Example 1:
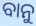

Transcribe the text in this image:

ବାନୁ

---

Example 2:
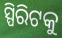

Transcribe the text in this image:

ସ୍ପିରିଟକୁ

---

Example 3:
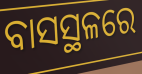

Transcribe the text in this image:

ବାସସ୍ଥଳରେ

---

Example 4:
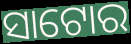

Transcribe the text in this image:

ସାଟୋର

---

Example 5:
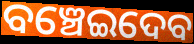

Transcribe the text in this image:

ବଞ୍ଚେଇଦେବ